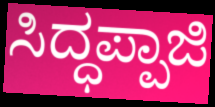
ಸಿದ್ಧಪ್ಪಾಜಿ